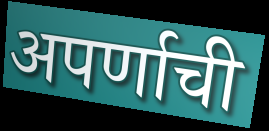
अपर्णाची